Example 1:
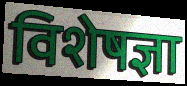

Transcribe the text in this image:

विशेषज्ञा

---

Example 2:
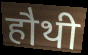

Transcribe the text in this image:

हौथी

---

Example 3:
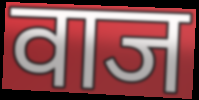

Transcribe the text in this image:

वाज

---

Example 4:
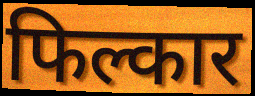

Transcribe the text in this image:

फिल्कार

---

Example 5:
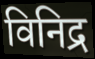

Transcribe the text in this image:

विनिद्र